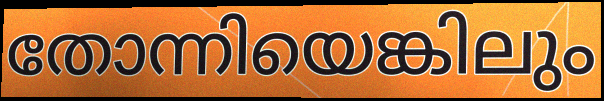
തോന്നിയെങ്കിലും